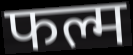
फल्म